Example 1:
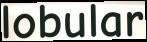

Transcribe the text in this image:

lobular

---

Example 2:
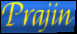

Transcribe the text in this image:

Prajin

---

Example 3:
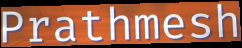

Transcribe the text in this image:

Prathmesh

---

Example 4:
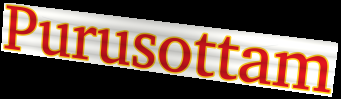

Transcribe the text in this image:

Purusottam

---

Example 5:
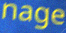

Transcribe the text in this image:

nage